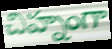
చిహ్నంగా